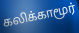
கலிக்காமூர்